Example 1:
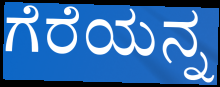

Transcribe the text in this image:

ಗೆರೆಯನ್ನ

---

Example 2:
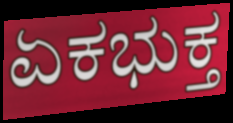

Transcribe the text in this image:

ಏಕಭುಕ್ತ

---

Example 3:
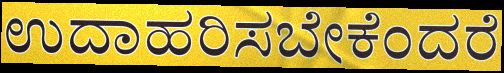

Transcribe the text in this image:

ಉದಾಹರಿಸಬೇಕೆಂದರೆ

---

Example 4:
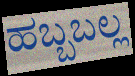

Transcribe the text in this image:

ಹಬ್ಬಬಲ್ಲ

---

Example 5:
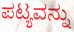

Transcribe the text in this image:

ಪಟ್ಯವನ್ನು